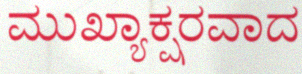
ಮುಖ್ಯಾಕ್ಷರವಾದ